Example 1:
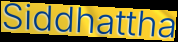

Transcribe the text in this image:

Siddhattha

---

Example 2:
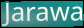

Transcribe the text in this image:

Jarawa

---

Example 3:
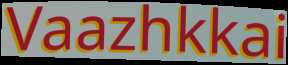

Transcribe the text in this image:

Vaazhkkai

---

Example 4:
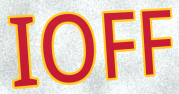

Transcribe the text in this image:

IOFF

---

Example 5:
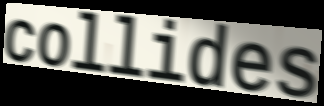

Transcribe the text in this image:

collides